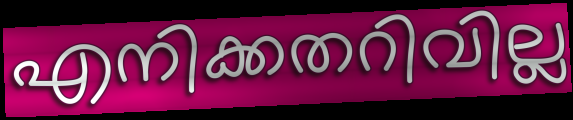
എനിക്കതറിവില്ല